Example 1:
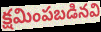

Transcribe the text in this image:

క్షమింపబడినవి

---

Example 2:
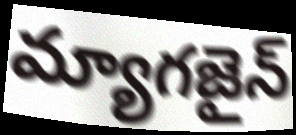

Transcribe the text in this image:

మ్యాగజైన్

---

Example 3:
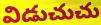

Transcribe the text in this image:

విడుచుచు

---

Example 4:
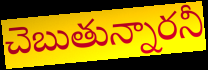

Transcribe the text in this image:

చెబుతున్నారనీ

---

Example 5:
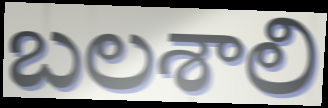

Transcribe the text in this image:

బలశాలి